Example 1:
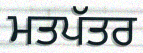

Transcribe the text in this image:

ਮਤਪੱਤਰ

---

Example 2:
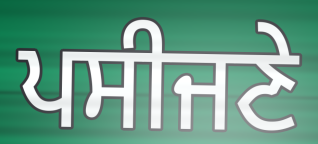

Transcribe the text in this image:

ਪਸੀਜਣੇ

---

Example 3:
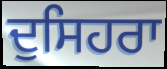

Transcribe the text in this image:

ਦੁਸਿਹਰਾ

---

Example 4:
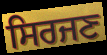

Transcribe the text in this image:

ਸਿਰਜਣ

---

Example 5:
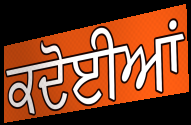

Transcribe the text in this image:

ਕਦੋਈਆਂ